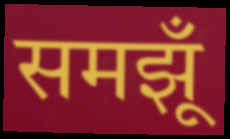
समझूँ